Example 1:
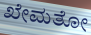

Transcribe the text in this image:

ಖೇಮತೋ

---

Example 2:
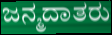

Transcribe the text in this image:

ಜನ್ಮದಾತರು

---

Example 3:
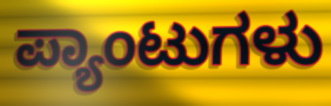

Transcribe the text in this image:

ಪ್ಯಾಂಟುಗಳು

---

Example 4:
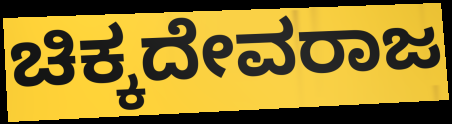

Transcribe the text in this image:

ಚಿಕ್ಕದೇವರಾಜ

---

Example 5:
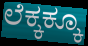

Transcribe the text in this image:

ಲೆಕ್ಕಕ್ಕೂ